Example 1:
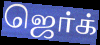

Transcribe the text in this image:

ஜெர்க்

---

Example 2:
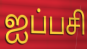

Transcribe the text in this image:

ஐப்பசி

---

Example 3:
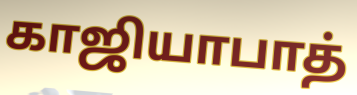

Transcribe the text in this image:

காஜியாபாத்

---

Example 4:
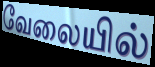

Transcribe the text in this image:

வேலையில்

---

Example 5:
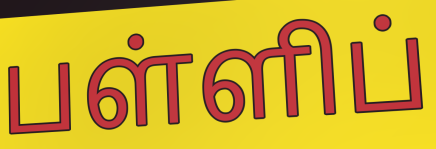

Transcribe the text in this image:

பள்ளிப்